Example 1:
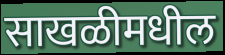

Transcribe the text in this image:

साखळीमधील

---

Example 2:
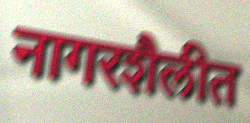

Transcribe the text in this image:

नागरशैलीत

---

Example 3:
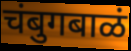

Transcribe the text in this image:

चंबुगबाळं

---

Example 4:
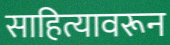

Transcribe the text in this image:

साहित्यावरून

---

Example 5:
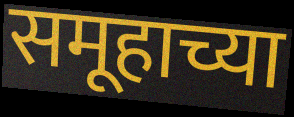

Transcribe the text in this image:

समूहाच्या